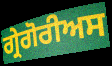
ਗ੍ਰੇਗੋਰੀਅਸ